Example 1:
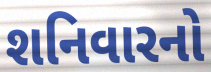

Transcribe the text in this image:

શનિવારનો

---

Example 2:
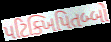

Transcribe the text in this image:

પટિક્ખિપિતબ્બો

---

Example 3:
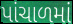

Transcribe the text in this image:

પાંચાળમાં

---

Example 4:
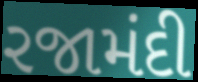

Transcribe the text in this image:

રજામંદી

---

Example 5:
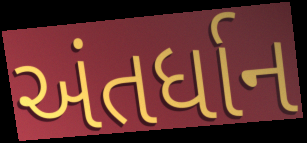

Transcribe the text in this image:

અંતર્ધાન